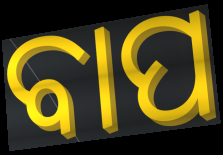
ବାପ